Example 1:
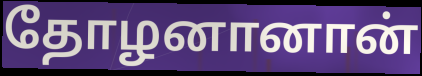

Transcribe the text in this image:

தோழனானான்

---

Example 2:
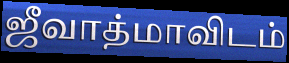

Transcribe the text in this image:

ஜீவாத்மாவிடம்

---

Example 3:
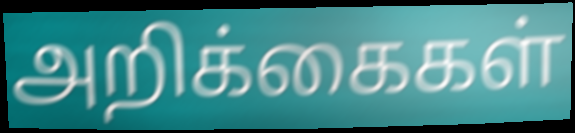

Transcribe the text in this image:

அறிக்கைகள்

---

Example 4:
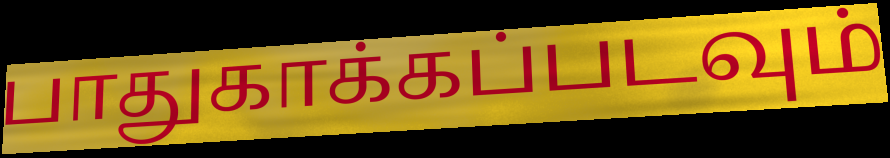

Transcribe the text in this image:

பாதுகாக்கப்படவும்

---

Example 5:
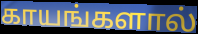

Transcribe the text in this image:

காயங்களால்